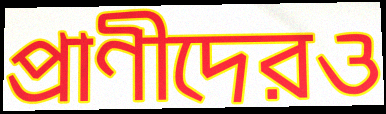
প্রাণীদেরও